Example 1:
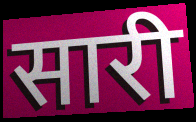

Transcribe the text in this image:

सारी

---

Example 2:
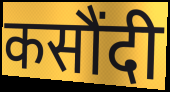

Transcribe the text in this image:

कसौंदी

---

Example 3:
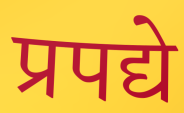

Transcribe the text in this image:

प्रपद्ये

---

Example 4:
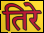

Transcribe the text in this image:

तिरे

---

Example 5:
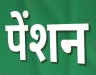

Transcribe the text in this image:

पेंशन